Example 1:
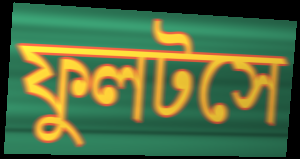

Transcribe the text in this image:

ফুলটসে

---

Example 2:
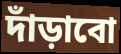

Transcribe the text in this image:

দাঁড়াবো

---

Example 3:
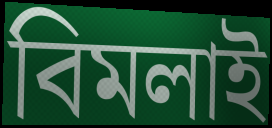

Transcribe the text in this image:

বিমলাই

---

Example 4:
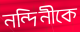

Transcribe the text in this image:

নন্দিনীকে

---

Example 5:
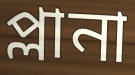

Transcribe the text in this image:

প্লানা